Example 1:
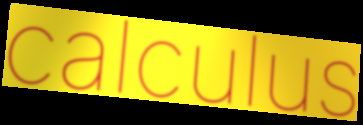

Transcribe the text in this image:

calculus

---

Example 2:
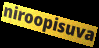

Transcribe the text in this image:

niroopisuva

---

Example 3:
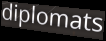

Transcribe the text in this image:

diplomats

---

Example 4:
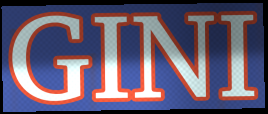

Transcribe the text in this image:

GINI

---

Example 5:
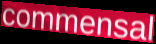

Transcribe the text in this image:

commensal